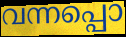
വന്നപ്പൊ